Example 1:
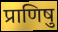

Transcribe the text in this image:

प्राणिषु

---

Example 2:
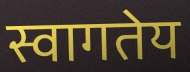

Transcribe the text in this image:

स्वागतेय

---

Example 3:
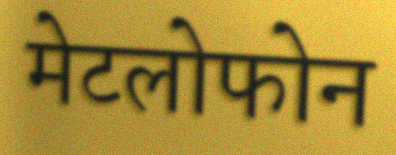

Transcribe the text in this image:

मेटलोफोन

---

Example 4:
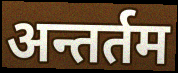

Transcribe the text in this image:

अन्तर्तम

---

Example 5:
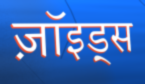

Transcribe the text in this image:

ज़ॉइड्स